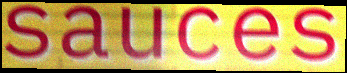
sauces